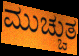
ಮುಚ್ಚುತ